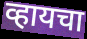
व्हायचा